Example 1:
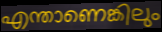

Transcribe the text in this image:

എന്താണെങ്കിലും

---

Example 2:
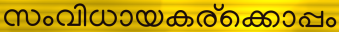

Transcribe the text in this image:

സംവിധായകര്ക്കൊപ്പം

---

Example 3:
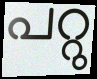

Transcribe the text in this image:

പറ്റു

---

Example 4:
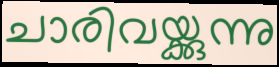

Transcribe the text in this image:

ചാരിവയ്ക്കുന്നു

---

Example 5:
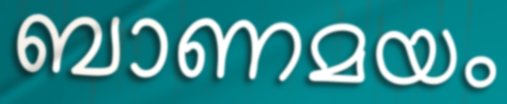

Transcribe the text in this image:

ബാണമയം